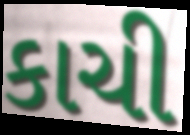
કાચી